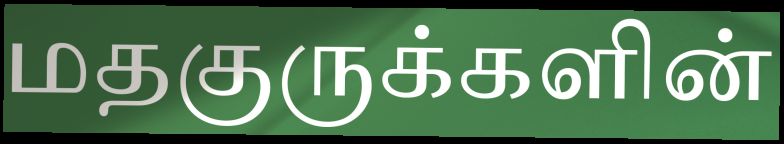
மதகுருக்களின்